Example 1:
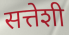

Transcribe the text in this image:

सत्तेशी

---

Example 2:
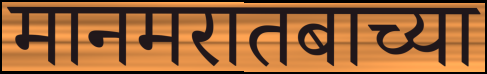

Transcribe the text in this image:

मानमरातबाच्या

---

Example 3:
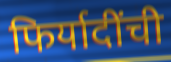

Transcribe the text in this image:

फिर्यादींची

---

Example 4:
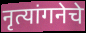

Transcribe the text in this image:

नृत्यांगनेचे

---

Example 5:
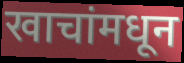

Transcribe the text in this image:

खाचांमधून